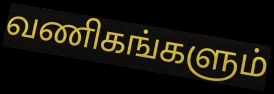
வணிகங்களும்